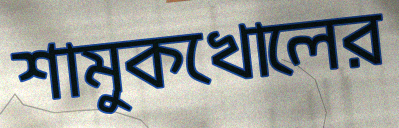
শামুকখোলের